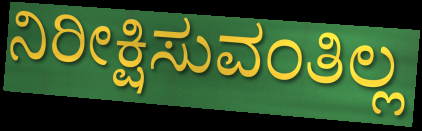
ನಿರೀಕ್ಷಿಸುವಂತಿಲ್ಲ